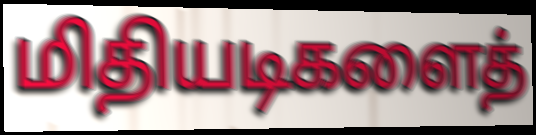
மிதியடிகளைத்